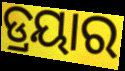
ଡ୍ରୟାର